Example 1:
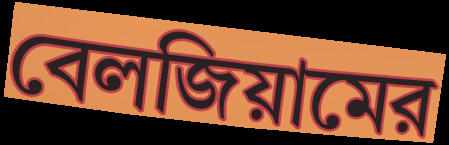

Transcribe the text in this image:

বেলজিয়ামের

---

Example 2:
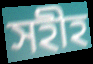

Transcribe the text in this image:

সহীহ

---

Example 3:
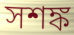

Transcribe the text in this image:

সশঙ্ক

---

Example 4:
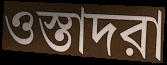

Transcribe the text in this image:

ওস্তাদরা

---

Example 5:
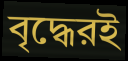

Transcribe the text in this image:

বৃদ্ধেরই